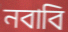
নবাবি